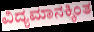
ವಿದ್ಯಮಾನಕ್ಕಿಂತ